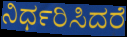
ನಿರ್ಧರಿಸಿದರೆ